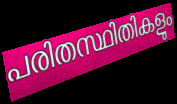
പരിതസ്ഥിതികളും